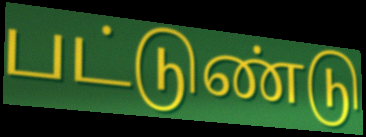
பட்டுண்டு